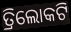
ତ୍ରିଲୋକଟି